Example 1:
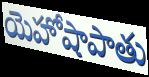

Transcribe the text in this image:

యెహోషాపాతు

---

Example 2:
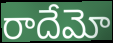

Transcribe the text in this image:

రాదేమో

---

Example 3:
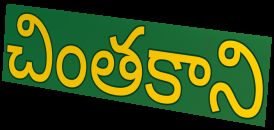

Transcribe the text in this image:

చింతకాని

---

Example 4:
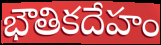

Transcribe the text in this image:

భౌతికదేహం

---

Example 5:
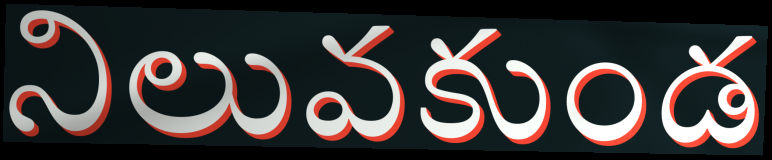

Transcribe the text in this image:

నిలువకుండ